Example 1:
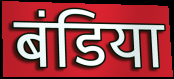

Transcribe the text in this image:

बंडिया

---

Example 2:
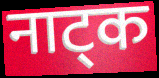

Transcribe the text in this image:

नाट्क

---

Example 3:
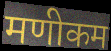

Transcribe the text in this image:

मणीकम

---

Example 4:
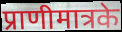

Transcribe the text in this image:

प्राणीमात्रके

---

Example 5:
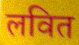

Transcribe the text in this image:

लवित